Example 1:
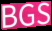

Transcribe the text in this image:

BGS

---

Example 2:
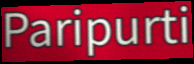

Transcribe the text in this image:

Paripurti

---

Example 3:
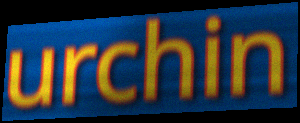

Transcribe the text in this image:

urchin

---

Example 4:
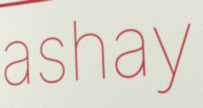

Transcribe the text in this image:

ashay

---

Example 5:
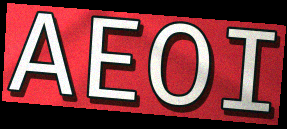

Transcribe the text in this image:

AEOI